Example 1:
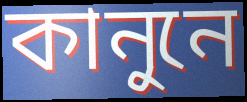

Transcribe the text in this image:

কানুনে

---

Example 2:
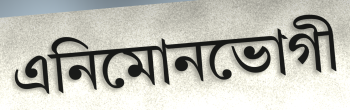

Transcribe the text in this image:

এনিমোনভোগী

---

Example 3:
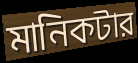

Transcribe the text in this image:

মানিকটার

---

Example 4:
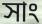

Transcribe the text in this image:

সাং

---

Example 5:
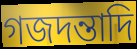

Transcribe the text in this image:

গজদন্তাদি